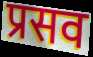
प्रसव